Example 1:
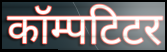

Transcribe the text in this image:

कॉम्पटिटर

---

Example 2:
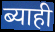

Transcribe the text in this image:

ब्याही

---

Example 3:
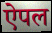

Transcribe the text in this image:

ऐपल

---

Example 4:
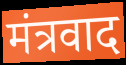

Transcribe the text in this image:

मंत्रवाद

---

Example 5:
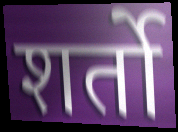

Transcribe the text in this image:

शर्तो